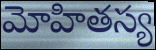
మోహితస్య